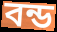
বন্ড